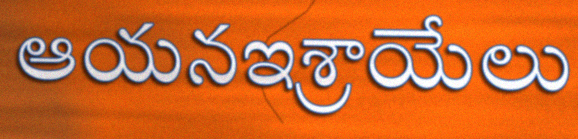
ఆయనఇశ్రాయేలు